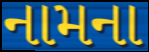
નામના